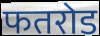
फतरोड